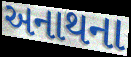
અનાથના